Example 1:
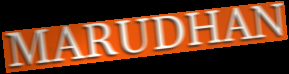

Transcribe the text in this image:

MARUDHAN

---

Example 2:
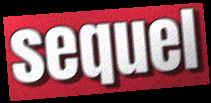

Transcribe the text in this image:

sequel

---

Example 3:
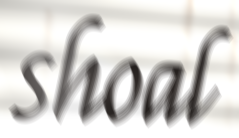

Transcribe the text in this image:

shoal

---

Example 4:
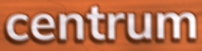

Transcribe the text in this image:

centrum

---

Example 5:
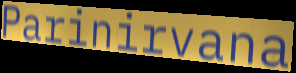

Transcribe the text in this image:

Parinirvana